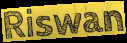
Riswan